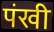
पंखी